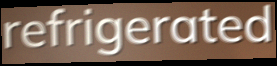
refrigerated